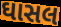
ઘાસલ